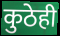
कुठेही